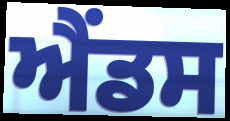
ਐਂਡਸ